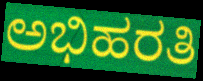
ಅಭಿಹರತಿ